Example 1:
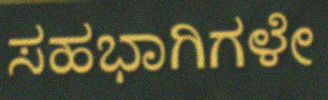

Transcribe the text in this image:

ಸಹಭಾಗಿಗಳೇ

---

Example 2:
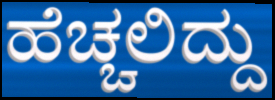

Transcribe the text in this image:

ಹೆಚ್ಚಲಿದ್ದು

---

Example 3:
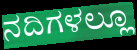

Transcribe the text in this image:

ನದಿಗಳಲ್ಲೂ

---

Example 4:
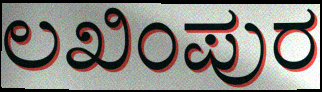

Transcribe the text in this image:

ಲಖಿಂಪುರ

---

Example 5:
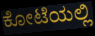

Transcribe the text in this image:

ಕೋಟೆಯಲ್ಲಿ